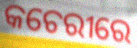
କଚେରୀରେ